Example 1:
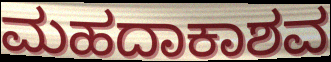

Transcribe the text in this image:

ಮಹದಾಕಾಶವ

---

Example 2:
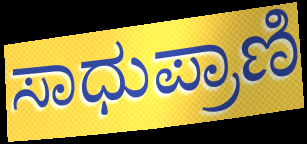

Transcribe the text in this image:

ಸಾಧುಪ್ರಾಣಿ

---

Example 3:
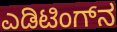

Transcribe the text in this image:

ಎಡಿಟಿಂಗ್‌ನ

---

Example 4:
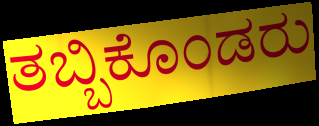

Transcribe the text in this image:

ತಬ್ಬಿಕೊಂಡರು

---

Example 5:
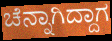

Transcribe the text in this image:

ಚೆನ್ನಾಗಿದ್ದಾಗ